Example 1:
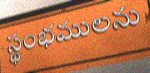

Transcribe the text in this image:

స్థంభములను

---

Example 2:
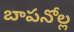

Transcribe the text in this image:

బాపనోల్ల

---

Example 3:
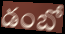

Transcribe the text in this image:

డంబో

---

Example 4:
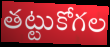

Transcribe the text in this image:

తట్టుకోగల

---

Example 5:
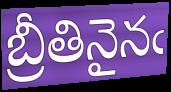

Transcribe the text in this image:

బ్రీతినైనఁ